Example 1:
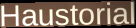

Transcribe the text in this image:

Haustorial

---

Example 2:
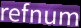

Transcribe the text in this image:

refnum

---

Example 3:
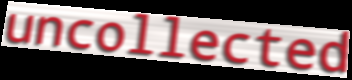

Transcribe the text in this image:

uncollected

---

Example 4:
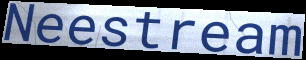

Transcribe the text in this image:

Neestream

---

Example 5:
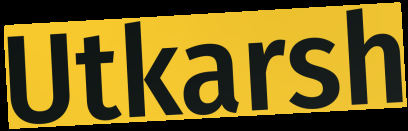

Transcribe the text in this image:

Utkarsh